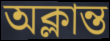
অক্লান্ত